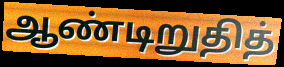
ஆண்டிறுதித்